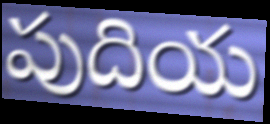
పుదియ